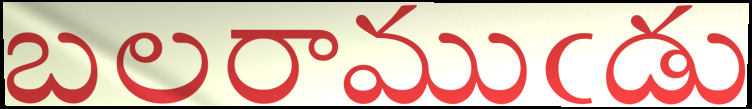
బలరాముఁడు